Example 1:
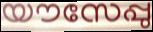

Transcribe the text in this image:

യൗസേപ്പു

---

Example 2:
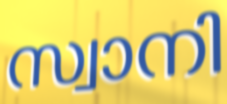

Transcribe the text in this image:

സ്വാനി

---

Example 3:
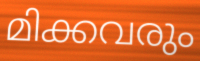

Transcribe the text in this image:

മിക്കവരും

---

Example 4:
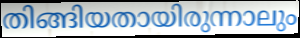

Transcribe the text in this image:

തിങ്ങിയതായിരുന്നാലും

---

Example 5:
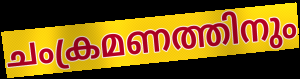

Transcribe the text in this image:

ചംക്രമണത്തിനും